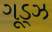
ગૂડ્ઝ